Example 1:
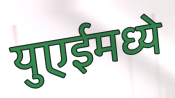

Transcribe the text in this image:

युएईमध्ये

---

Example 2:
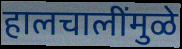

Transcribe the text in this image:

हालचालींमुळे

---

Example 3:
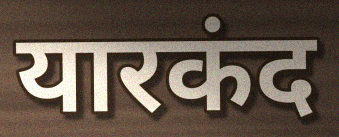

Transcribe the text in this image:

यारकंद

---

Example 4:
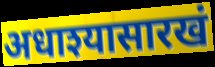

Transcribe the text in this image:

अधाश्यासारखं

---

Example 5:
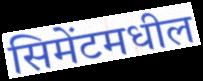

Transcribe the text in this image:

सिमेंटमधील